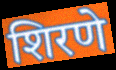
शिरणे